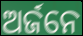
ଅର୍ଜନେ